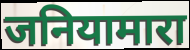
जनियामारा